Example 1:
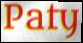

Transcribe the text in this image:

Paty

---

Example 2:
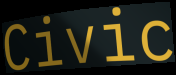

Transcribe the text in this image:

Civic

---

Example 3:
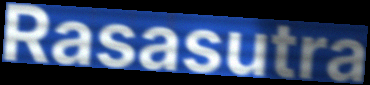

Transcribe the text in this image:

Rasasutra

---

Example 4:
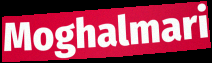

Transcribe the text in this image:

Moghalmari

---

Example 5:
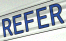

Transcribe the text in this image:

REFER